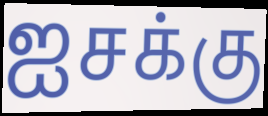
ஐசக்கு